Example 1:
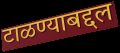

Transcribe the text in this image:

टाळण्याबद्दल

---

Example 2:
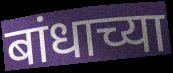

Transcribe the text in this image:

बांधाच्या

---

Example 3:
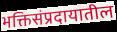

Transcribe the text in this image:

भक्तिसंप्रदायातील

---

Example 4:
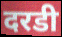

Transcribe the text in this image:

दरडी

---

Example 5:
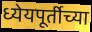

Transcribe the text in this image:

ध्येयपूर्तीच्या